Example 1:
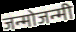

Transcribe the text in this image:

जन्मोजन्मी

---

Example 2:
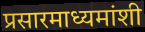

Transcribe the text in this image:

प्रसारमाध्यमांशी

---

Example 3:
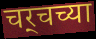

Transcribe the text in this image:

चर्चच्या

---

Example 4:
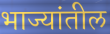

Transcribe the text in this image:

भाज्यांतील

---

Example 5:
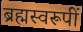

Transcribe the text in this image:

ब्रह्मस्वरूपीं